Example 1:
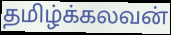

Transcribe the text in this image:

தமிழ்க்கலவன்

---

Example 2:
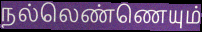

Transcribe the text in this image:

நல்லெண்ணெயும்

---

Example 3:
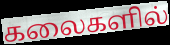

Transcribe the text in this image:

கலைகளில்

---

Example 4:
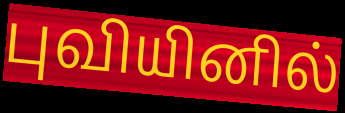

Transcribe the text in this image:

புவியினில்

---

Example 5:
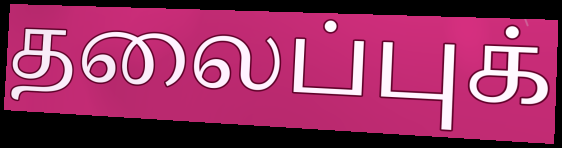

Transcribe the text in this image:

தலைப்புக்